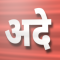
अदे